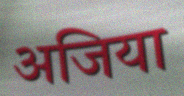
अजिया